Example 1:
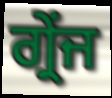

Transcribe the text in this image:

ਗ੍ਰੇਂਜ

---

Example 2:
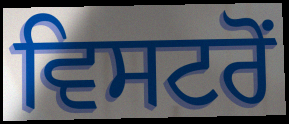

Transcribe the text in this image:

ਵਿਸਟਰੋਂ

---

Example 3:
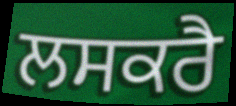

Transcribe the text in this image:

ਲਸਕਰੈ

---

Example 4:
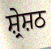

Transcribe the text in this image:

ਸ਼੍ਰੇਸ਼ਠ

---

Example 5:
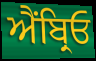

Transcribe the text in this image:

ਐਂਬ੍ਰਿਓ